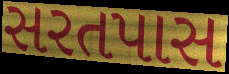
સરતપાસ